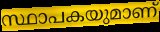
സ്ഥാപകയുമാണ്